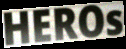
HEROs